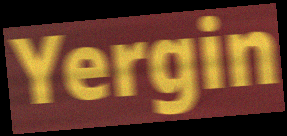
Yergin